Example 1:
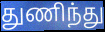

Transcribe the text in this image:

துணிந்து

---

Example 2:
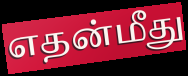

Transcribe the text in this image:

எதன்மீது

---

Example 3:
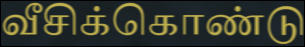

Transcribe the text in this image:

வீசிக்கொண்டு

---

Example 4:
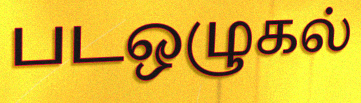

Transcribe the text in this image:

படஒழுகல்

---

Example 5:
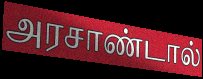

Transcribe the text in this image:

அரசாண்டால்